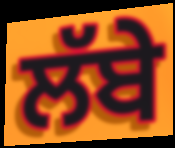
ਲੱਬੇ